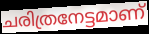
ചരിത്രനേട്ടമാണ്